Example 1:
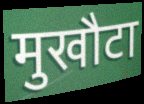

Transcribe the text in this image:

मुखौटा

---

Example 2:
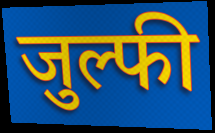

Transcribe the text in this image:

जुल्फी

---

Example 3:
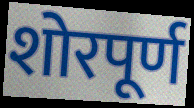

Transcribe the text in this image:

शोरपूर्ण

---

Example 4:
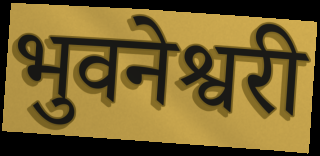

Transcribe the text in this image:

भुवनेश्वरी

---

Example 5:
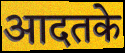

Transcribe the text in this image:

आदतके